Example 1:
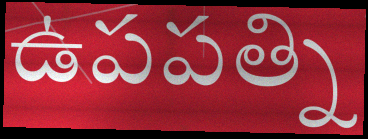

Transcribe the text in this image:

ఉపపత్ని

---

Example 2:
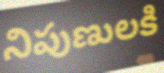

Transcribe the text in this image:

నిపుణులకి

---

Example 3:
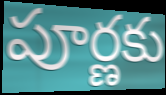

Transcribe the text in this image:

పూర్ణకు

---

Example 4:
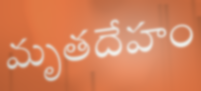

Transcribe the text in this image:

మృతదేహం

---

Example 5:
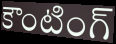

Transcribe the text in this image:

కౌంటింగ్